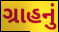
ગ્રાહનું